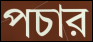
পচার